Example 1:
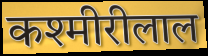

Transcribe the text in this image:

कश्मीरीलाल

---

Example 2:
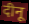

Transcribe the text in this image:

दीनू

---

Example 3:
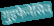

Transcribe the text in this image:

गुइफेनेसिन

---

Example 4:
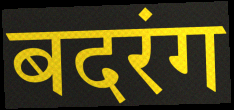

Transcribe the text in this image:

बदरंग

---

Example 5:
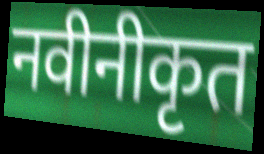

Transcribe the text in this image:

नवीनीकृत